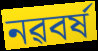
নৱবৰ্ষ